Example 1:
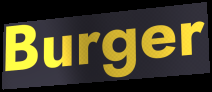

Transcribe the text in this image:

Burger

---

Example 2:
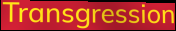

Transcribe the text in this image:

Transgression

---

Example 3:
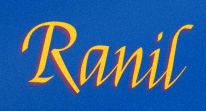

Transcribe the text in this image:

Ranil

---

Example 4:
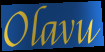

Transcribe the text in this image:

Olavu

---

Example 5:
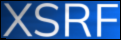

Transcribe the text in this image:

XSRF